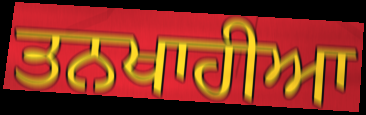
ਤਨਖਾਹੀਆ